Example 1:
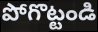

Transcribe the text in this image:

పోగొట్టండి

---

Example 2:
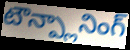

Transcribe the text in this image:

టౌన్ప్లానింగ్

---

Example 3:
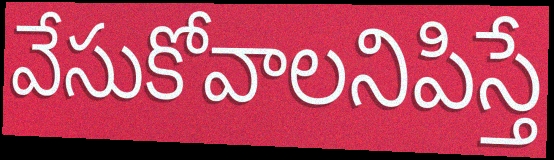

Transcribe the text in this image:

వేసుకోవాలనిపిస్తే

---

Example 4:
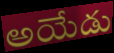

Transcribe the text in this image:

అయేడు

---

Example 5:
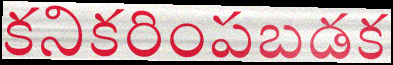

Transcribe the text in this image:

కనికరింపబడక